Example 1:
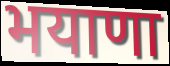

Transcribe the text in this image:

भयाणा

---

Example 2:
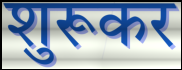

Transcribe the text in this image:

शुरूकर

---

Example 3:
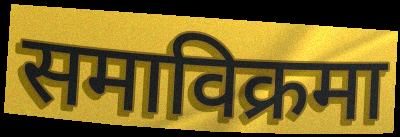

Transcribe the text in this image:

समाविक्रमा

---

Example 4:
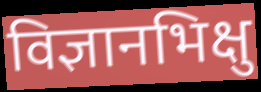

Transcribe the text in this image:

विज्ञानभिक्षु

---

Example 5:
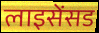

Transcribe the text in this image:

लाइसेंसड